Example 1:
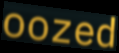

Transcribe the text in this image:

oozed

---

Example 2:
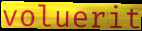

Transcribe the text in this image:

voluerit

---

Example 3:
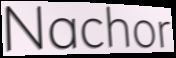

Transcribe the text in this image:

Nachor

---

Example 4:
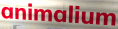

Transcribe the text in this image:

animalium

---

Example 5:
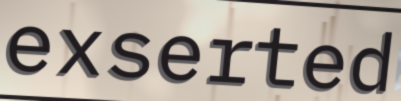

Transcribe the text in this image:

exserted